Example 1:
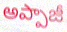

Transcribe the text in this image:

అప్పాజీ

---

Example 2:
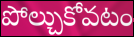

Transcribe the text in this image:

పోల్చుకోవటం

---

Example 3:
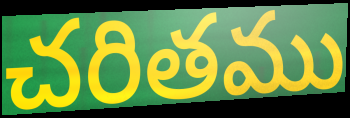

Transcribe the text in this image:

చరితము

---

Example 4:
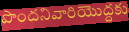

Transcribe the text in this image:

పొందనివారియొద్దకు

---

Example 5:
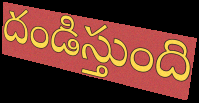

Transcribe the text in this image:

దండిస్తుంది